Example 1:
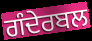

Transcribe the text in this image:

ਗੰਦੇਰਬਲ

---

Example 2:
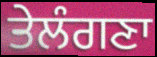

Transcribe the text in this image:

ਤੇਲੰਗਣਾ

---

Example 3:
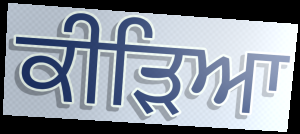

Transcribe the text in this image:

ਕੀੜਿਆ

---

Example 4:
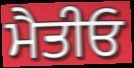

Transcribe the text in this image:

ਮੈਤੀਓ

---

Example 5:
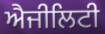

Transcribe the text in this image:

ਐਜੀਲਿਟੀ